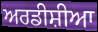
ਅਰਡੀਸ਼ੀਆ